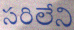
సరిలేని